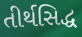
તીર્થસિદ્ધ